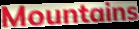
Mountains